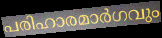
പരിഹാരമാർഗവും